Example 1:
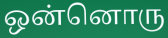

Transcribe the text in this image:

ஒன்னொரு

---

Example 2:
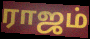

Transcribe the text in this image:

ராஜம்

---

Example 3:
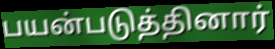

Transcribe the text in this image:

பயன்படுத்தினார்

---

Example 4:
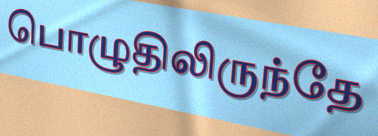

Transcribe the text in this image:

பொழுதிலிருந்தே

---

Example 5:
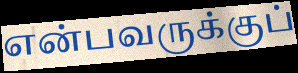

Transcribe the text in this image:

என்பவருக்குப்